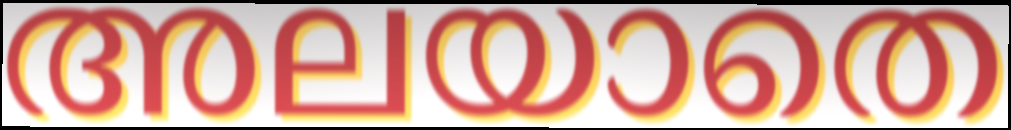
അലയാതെ